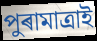
পুৰামাত্ৰাই